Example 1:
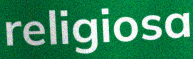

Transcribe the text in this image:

religiosa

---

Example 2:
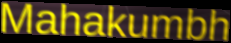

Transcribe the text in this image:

Mahakumbh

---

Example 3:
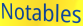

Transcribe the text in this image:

Notables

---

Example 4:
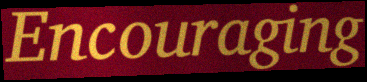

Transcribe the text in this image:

Encouraging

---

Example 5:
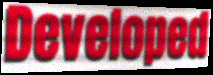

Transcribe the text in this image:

Developed